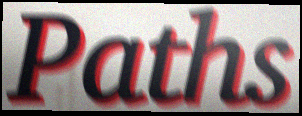
Paths